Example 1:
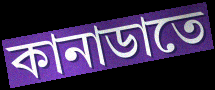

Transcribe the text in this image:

কানাডাতে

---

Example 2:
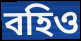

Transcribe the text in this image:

বহিও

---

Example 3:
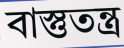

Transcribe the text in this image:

বাস্তুতন্ত্র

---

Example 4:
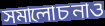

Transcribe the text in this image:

সমালোচনাও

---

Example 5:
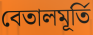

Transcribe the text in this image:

বেতালমূর্তি